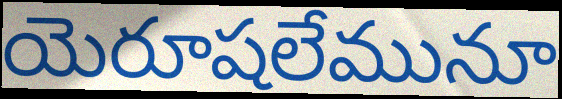
యెరూషలేమునూ